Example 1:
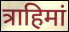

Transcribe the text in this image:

त्राहिमां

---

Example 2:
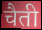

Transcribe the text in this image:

चैती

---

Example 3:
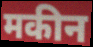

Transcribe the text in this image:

मकीन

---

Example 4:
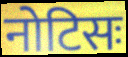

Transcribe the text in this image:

नोटिसः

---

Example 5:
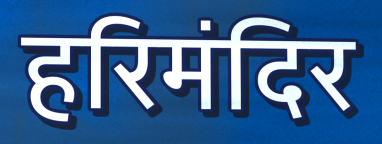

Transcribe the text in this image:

हरिमंदिर